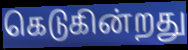
கெடுகின்றது